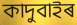
কাদুবাইৰ